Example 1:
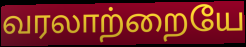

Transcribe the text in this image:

வரலாற்றையே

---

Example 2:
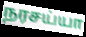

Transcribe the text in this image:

நரசய்யா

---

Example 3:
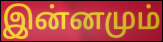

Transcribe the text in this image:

இன்னமும்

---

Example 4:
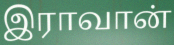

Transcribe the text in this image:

இராவான்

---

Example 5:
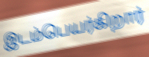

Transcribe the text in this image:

இடம்பெயர்கிறார்